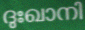
ദുഃഖാനി